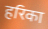
हरिका